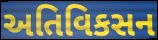
અતિવિકસન